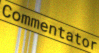
Commentator